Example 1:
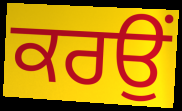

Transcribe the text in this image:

ਕਰਉਂ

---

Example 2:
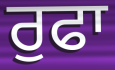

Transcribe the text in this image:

ਰੁਫਾ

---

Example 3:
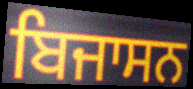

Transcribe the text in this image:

ਬਿਜਾਸਨ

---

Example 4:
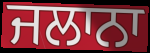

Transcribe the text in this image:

ਜਲਾਨਾ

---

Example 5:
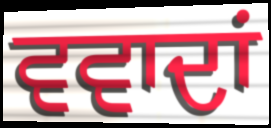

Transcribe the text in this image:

ਵਵਾਦਾਂ